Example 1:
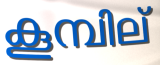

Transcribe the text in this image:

കൂമ്പില്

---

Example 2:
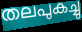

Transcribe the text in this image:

തലപുകച്ചു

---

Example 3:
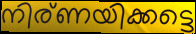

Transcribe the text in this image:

നിര്ണയിക്കട്ടെ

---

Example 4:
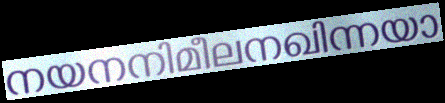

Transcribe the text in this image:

നയനനിമീലനഖിന്നയാ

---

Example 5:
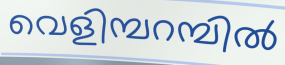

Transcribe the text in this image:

വെളിമ്പറമ്പിൽ